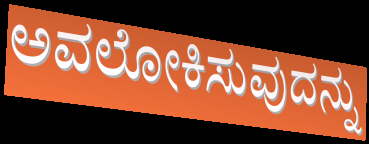
ಅವಲೋಕಿಸುವುದನ್ನು